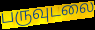
பருவுடலை